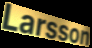
Larsson